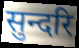
सुन्दरि